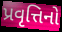
પ્રવૃત્તિનો